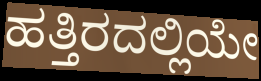
ಹತ್ತಿರದಲ್ಲಿಯೇ